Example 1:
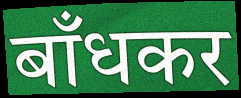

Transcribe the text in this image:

बाँधकर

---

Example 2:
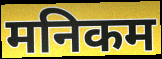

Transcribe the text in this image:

मनिकम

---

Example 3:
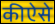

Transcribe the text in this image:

कीऐसे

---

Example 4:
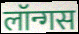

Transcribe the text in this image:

लॉन्गस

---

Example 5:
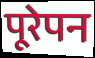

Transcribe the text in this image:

पूरेपन